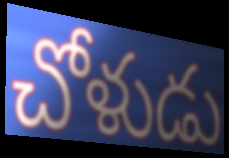
చోళుడు